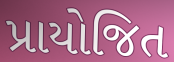
પ્રાયોજિત